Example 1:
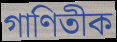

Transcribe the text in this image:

গাণিতীক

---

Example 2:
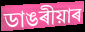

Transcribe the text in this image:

ডাঙৰীয়াৰ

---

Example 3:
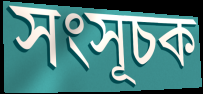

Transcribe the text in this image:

সংসূচক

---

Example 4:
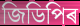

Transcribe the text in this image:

জিডিপিৰ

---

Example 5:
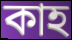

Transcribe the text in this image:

কাহ